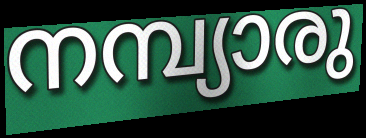
നമ്പ്യാരു